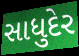
સાધુદેર